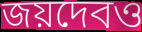
জয়দেবও